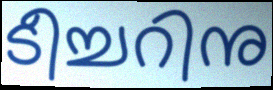
ടീച്ചറിനു